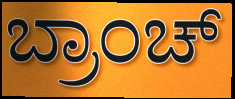
ಬ್ರಾಂಚ್